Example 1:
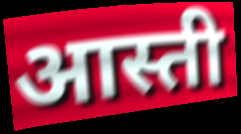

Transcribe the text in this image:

आस्ती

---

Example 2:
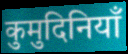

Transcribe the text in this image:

कुमुदिनियाँ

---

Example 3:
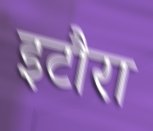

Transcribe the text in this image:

इटौरा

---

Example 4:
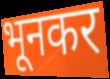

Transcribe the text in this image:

भूनकर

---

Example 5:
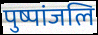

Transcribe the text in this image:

पुष्पांजलि